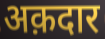
अक़दार